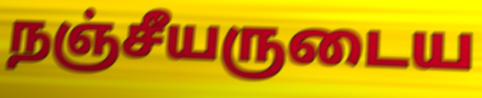
நஞ்சீயருடைய